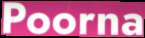
Poorna